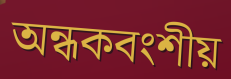
অন্ধকবংশীয়